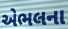
એભલના